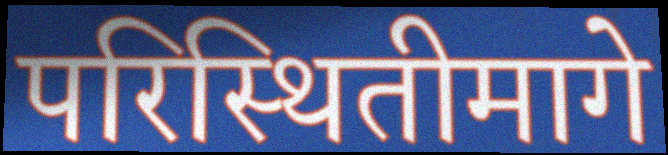
परिस्थितीमागे